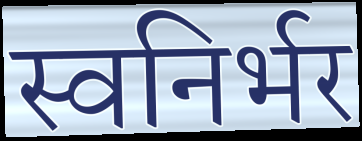
स्वनिर्भर